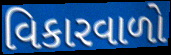
વિકારવાળો